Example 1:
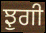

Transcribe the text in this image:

ਝੁਗੀ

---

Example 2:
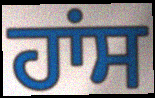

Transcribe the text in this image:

ਹਾਂਸ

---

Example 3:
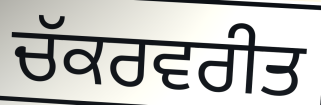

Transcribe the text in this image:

ਚੱਕਰਵਰੀਤ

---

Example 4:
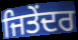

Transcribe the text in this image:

ਜਿਤੇਂਦਰ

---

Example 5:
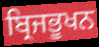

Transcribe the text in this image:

ਬ੍ਰਿਜਭੂਖਨ